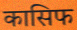
कासिफ